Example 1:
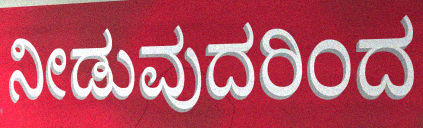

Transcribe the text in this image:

ನೀಡುವುದರಿಂದ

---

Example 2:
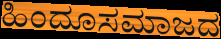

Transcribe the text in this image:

ಹಿಂದೂಸಮಾಜದ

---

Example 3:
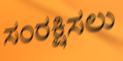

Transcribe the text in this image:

ಸಂರಕ್ಷಿಸಲು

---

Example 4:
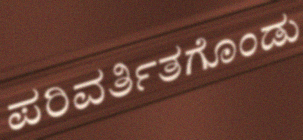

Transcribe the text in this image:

ಪರಿವರ್ತಿತಗೊಂಡು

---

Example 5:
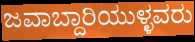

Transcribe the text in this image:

ಜವಾಬ್ದಾರಿಯುಳ್ಳವರು